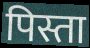
पिस्ता